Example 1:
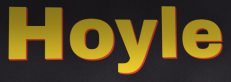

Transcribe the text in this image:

Hoyle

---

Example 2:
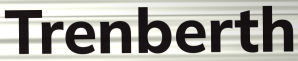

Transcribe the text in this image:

Trenberth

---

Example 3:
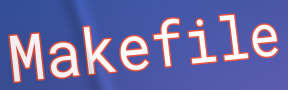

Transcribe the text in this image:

Makefile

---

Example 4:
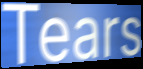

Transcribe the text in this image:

Tears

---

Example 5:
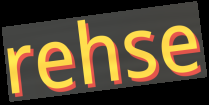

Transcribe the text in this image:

rehse